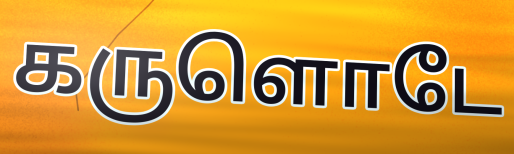
கருளொடே